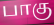
பாகு